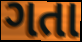
ગતા